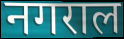
नगराल